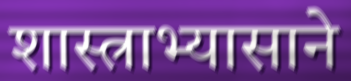
शास्त्राभ्यासाने